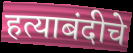
हत्याबंदीचे